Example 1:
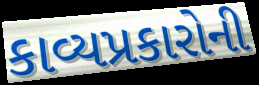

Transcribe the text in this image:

કાવ્યપ્રકારોની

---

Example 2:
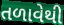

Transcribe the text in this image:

તળાવેથી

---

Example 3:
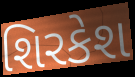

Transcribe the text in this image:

શિરકેશ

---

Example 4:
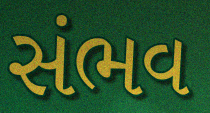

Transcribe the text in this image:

સંભવ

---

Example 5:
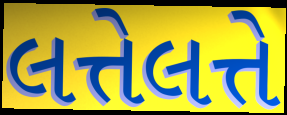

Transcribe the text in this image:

લત્તેલત્તે